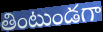
తింటుండగా